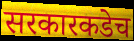
सरकारकडेच